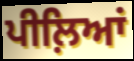
ਪੀਲ਼ਿਆਂ